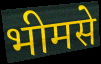
भीमसे